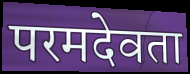
परमदेवता